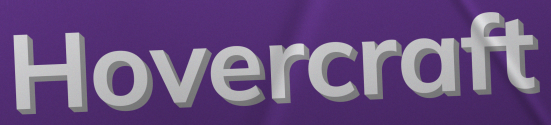
Hovercraft